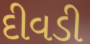
દીવડી